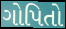
ગોપિતો